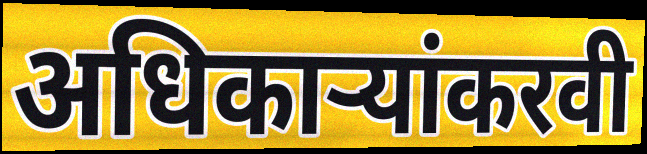
अधिकाऱ्यांकरवी